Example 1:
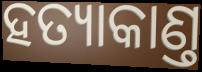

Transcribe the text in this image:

ହତ୍ୟାକାଣ୍ତ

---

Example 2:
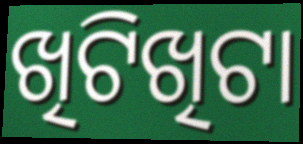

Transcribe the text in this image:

ଖିଟିଖିଟା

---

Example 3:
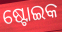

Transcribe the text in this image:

ଷ୍ଟୋଇକ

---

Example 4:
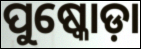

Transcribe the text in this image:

ପୁଷ୍କୋଡ଼ା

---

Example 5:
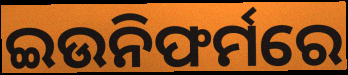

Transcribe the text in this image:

ଇଉନିଫର୍ମରେ